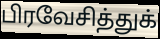
பிரவேசித்துக்